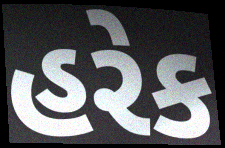
હરેક